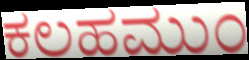
ಕಲಹಮುಂ